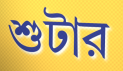
শুটার